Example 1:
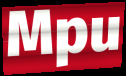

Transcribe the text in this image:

Mpu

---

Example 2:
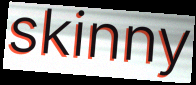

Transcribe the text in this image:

skinny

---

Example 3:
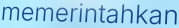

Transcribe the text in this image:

memerintahkan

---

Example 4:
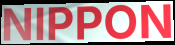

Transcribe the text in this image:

NIPPON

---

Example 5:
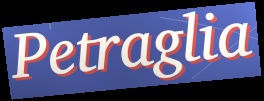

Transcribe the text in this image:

Petraglia